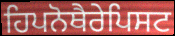
ਹਿਪਨੋਥੈਰੇਪਿਸਟ